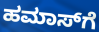
ಹಮಾಸ್‌ಗೆ